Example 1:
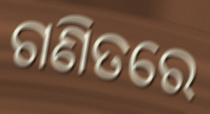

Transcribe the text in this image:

ଗଣିତରେ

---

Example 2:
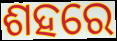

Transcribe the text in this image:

ଶହରେ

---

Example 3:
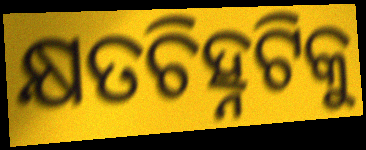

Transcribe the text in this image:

କ୍ଷତଚିହ୍ନଟିକୁ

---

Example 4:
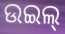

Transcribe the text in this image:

ଉଇଲ୍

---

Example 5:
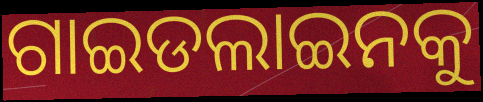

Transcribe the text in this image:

ଗାଇଡଲାଇନକୁ